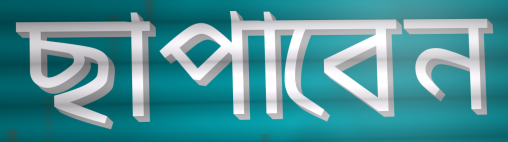
ছাপাবেন